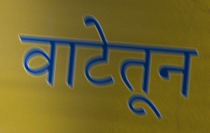
वाटेतून